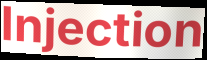
Injection